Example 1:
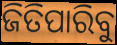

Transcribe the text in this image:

ଜିତିପାରିବୁ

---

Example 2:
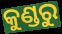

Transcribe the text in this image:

କୁଣ୍ଡରୁ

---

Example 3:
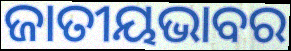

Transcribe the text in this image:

ଜାତୀୟଭାବର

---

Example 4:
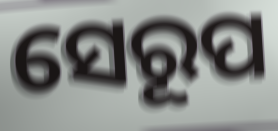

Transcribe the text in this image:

ସେରୂପ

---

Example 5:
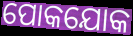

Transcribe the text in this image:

ପୋକଯୋକ